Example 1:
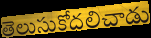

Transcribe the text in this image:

తెలుసుకోదలిచాడు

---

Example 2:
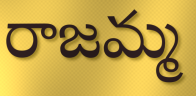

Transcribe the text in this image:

రాజమ్మ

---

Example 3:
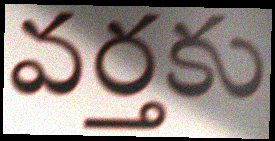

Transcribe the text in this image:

వర్తకు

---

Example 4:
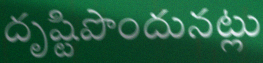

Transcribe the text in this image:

దృష్టిపొందునట్లు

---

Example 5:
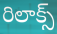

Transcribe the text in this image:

రిలాక్స్